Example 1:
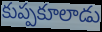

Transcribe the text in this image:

కుప్పకూలాడు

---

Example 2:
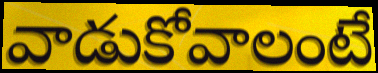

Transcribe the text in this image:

వాడుకోవాలంటే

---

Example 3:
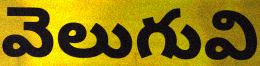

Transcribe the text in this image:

వెలుగువి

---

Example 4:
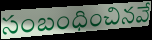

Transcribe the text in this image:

సంబంధించినవే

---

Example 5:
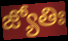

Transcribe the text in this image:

జ్యోతిః